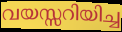
വയസ്സറിയിച്ച